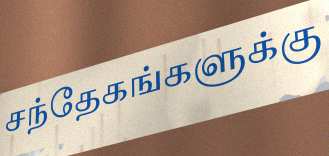
சந்தேகங்களுக்கு